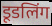
डूडलिंग